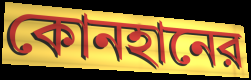
কোনহানের